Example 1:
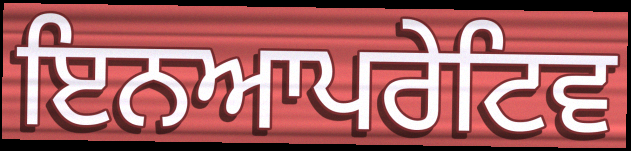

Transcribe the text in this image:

ਇਨਆਪਰੇਟਿਵ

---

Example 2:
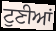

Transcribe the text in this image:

ਟੁਣੀਆਂ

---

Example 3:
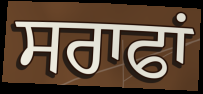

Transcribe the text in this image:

ਸਰਾਫਾਂ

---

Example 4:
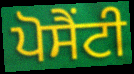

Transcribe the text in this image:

ਪੋਸੈਂਟੀ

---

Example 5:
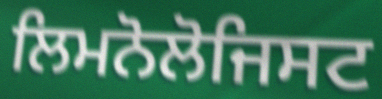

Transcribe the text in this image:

ਲਿਮਨੋਲੋਜਿਸਟ